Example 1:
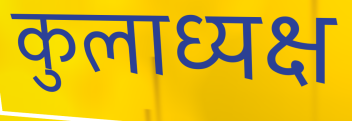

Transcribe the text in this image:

कुलाध्यक्ष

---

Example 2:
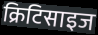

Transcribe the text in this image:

क्रिटिसाइज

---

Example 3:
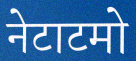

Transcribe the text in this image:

नेटाटमो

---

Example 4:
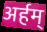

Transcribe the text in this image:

अर्हम्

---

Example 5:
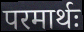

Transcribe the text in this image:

परमार्थः